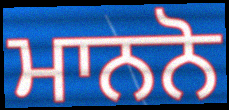
ਮਾਨਨੋ